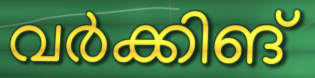
വർക്കിങ്